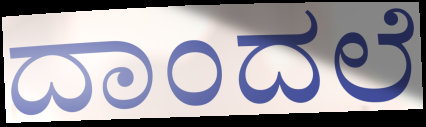
ದಾಂದಲೆ